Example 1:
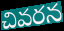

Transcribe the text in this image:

చివరన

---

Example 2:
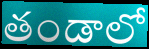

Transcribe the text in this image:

తండాలో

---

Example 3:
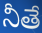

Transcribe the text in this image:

నీతే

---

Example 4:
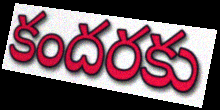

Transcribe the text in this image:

కందరకు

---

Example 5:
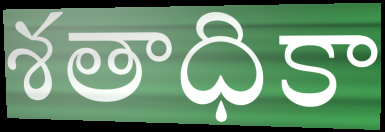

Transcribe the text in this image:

శతాధికా